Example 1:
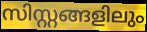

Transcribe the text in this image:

സിസ്റ്റങ്ങളിലും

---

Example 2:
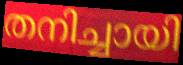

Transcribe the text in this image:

തനിച്ചായി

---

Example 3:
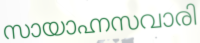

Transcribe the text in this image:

സായാഹ്നസവാരി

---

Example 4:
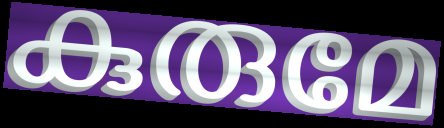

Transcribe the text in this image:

കുരുമേ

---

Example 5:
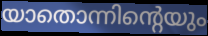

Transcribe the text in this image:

യാതൊന്നിന്റെയും